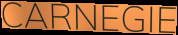
CARNEGIE